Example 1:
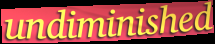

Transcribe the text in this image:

undiminished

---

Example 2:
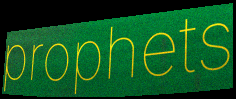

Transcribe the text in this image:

prophets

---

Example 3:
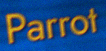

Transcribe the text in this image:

Parrot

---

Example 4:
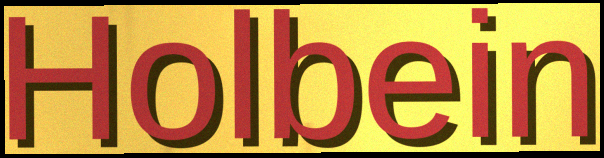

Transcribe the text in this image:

Holbein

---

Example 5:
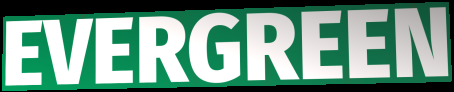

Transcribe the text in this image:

EVERGREEN